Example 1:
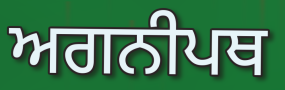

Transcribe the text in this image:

ਅਗਨੀਪਥ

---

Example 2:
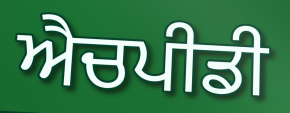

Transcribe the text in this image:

ਐਚਪੀਡੀ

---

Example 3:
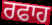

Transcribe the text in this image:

ਰਫਾਹ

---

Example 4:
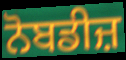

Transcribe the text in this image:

ਨੋਬਡੀਜ਼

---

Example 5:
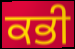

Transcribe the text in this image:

ਕਭੀ